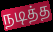
நடித்த